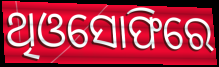
ଥିଓସୋଫିରେ